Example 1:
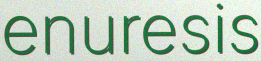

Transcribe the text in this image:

enuresis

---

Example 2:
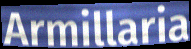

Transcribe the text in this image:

Armillaria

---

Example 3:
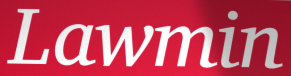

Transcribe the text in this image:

Lawmin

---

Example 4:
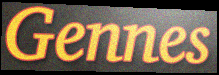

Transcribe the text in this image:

Gennes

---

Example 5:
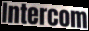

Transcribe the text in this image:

Intercom